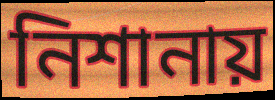
নিশানায়